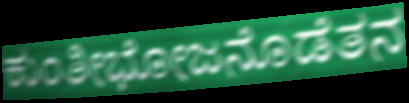
ಕುಂತೀಭೋಜನೊಡೆತನ